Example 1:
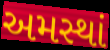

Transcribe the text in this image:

અમસ્થાં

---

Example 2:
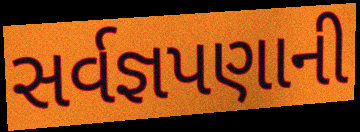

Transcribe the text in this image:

સર્વજ્ઞપણાની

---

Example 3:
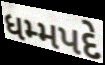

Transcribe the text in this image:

ધમ્મપદે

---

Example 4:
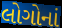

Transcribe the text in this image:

લોગોનાં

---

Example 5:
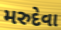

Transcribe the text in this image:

મરુદેવા